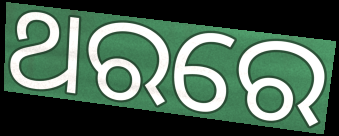
ଥରରେ